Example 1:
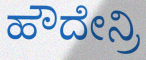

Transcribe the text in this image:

ಹೌದೇನ್ರಿ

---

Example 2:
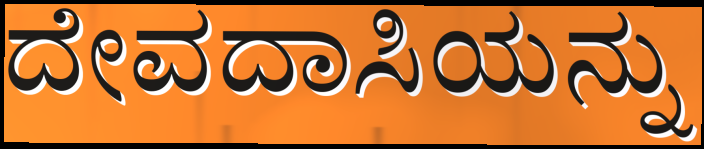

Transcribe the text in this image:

ದೇವದಾಸಿಯನ್ನು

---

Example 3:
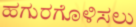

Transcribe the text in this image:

ಹಗುರಗೊಳಿಸಲು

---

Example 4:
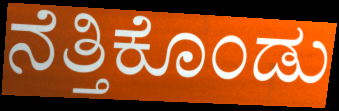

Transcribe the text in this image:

ನೆತ್ತಿಕೊಂಡು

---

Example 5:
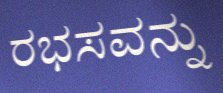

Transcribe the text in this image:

ರಭಸವನ್ನು